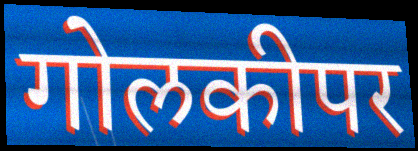
गोलकीपर